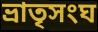
ভ্রাতৃসংঘ